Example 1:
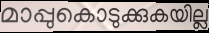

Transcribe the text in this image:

മാപ്പുകൊടുക്കുകയില്ല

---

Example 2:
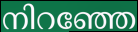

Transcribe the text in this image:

നിറഞ്ഞേ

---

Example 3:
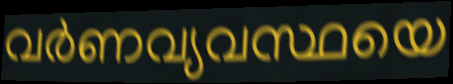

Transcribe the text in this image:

വർണവ്യവസ്ഥയെ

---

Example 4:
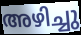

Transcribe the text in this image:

അഴിച്ചു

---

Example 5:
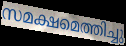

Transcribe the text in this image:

സമക്ഷമെത്തിച്ചു